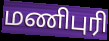
மணிபுரி